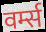
वर्म्स